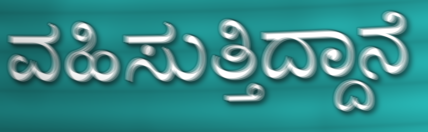
ವಹಿಸುತ್ತಿದ್ದಾನೆ